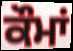
ਕੌਮਾਂ